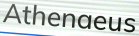
Athenaeus